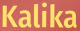
Kalika